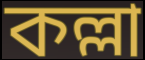
কল্লা